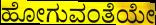
ಹೋಗುವಂತೆಯೇ